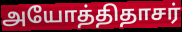
அயோத்திதாசர்